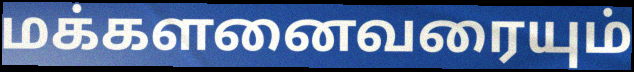
மக்களனைவரையும்